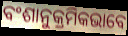
ବଂଶାନୁକ୍ରମିକଭାବେ